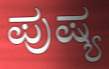
ಪುಷ್ಯ